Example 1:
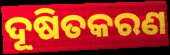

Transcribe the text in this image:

ଦୂଷିତକରଣ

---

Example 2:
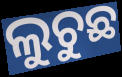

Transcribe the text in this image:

ଲୁଚୁଛ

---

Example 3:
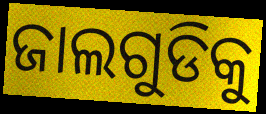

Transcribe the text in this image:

ଜାଲଗୁଡିକୁ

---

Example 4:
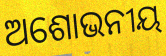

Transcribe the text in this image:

ଅଶୋଭନୀୟ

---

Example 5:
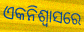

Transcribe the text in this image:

ଏକନିଶ୍ୱାସରେ